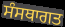
ਸੰਸਥਾਗਤ